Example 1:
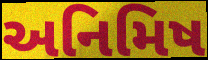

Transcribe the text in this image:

અનિમિષ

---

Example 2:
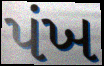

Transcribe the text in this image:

પંખ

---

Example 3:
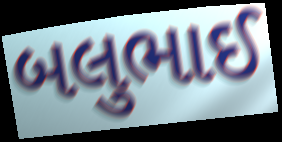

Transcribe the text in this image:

બલુભાઈ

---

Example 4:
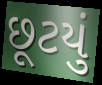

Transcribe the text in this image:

છૂટયું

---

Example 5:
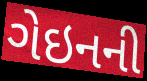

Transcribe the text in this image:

ગેઇનની